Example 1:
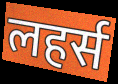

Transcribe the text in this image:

लहर्स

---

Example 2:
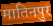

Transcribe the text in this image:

मातिनपुर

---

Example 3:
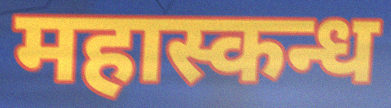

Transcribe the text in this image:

महास्कन्ध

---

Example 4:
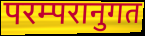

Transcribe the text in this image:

परम्परानुगत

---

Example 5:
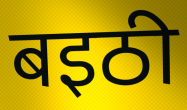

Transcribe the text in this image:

बइठी